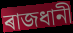
ৰাজধানী